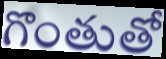
గొంతుతో